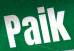
Paik